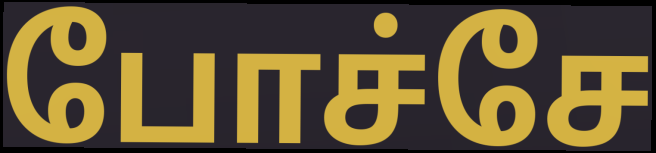
போச்சே